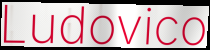
Ludovico